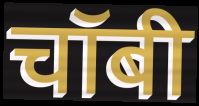
चॉबी